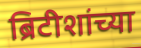
ब्रिटीशांच्या